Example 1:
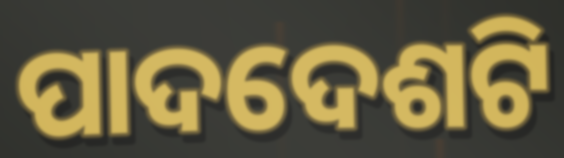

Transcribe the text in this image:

ପାଦଦେଶଟି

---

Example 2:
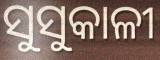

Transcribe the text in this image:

ସୁସୁକାଳୀ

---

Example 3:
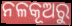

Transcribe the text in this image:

ନଳକୂଅରୁ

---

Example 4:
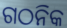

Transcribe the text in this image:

ଗଠନିକ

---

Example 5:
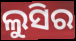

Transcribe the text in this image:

ଲୁସିର